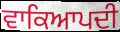
ਵਾਕਿਆਪਦੀ